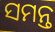
ସମନ୍ତ